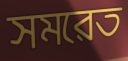
সমৱেত